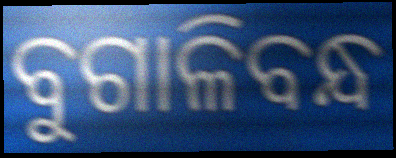
ବୁଗାଳିବନ୍ଧ